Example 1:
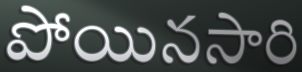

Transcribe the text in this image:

పోయినసారి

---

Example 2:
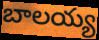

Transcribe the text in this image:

బాలయ్య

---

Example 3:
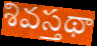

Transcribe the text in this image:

శివస్తథా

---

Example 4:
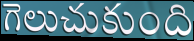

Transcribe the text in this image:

గెలుచుకుంది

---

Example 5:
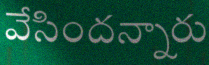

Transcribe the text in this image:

వేసిందన్నారు